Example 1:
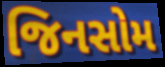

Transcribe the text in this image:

જિનસોમ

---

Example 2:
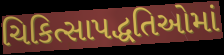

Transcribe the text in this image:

ચિકિત્સાપદ્ધતિઓમાં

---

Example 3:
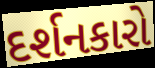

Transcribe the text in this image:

દર્શનકારો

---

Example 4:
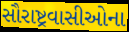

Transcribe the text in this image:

સૌરાષ્ટ્રવાસીઓના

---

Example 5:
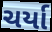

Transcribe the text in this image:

ચર્યા